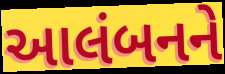
આલંબનને